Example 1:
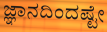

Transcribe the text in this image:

ಜ್ಞಾನದಿಂದಷ್ಟೇ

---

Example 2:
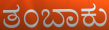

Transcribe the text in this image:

ತಂಬಾಕು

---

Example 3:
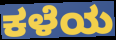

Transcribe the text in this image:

ಕಳೆಯ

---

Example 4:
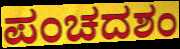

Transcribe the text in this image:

ಪಂಚದಶಂ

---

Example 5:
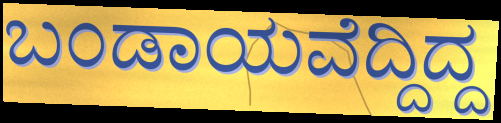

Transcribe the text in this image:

ಬಂಡಾಯವೆದ್ದಿದ್ದ